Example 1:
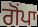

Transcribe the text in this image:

ਗੋਂਪਾ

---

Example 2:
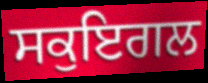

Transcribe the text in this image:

ਸਕੁਇਗਲ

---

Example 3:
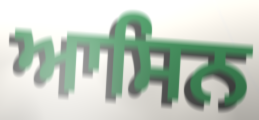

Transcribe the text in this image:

ਆਸਿਨ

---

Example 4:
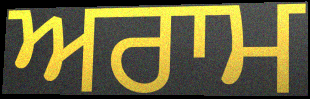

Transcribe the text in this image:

ਅਰਾਮ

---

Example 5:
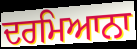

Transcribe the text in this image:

ਦਰਮਿਆਨਾ